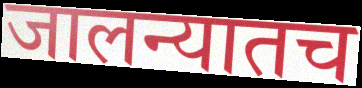
जालन्यातच